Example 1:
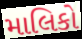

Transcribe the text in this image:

માલિકો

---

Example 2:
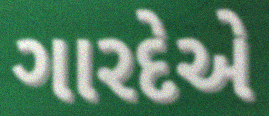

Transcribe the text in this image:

ગારદેએ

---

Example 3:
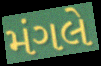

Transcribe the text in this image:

મંગલે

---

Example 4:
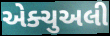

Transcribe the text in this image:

એક્ચુઅલી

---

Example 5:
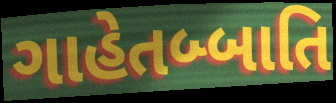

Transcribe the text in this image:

ગાહેતબ્બાતિ